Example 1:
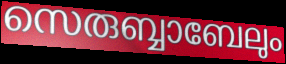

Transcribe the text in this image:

സെരുബ്ബാബേലും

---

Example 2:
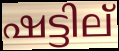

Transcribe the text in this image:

ഷട്ടില്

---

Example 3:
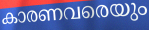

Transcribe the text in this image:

കാരണവരെയും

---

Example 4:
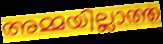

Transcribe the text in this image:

അമ്മയില്ലാത്ത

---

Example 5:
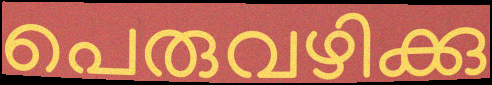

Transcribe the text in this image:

പെരുവഴിക്കു